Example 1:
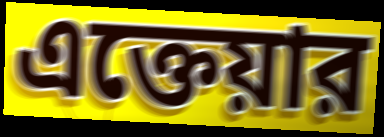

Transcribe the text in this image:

এক্তেয়ার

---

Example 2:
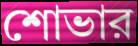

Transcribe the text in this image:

শোভার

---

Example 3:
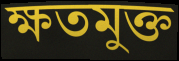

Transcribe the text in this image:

ক্ষতমুক্ত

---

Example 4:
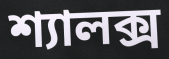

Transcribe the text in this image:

শ্যালক্স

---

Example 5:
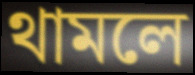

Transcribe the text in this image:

থামলে